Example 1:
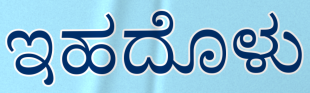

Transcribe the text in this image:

ಇಹದೊಳು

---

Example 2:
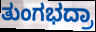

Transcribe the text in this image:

ತುಂಗಭದ್ರಾ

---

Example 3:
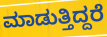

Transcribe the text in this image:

ಮಾಡುತ್ತಿದ್ದರೆ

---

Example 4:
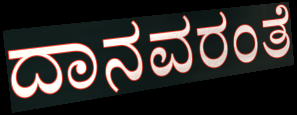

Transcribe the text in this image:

ದಾನವರಂತೆ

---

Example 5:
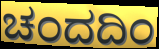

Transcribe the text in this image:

ಚಂದದಿಂ